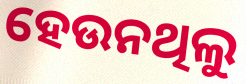
ହେଉନଥିଲୁ